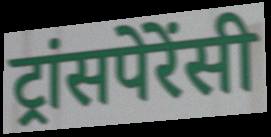
ट्रांसपेरेंसी